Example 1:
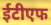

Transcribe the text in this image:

ईटीएफ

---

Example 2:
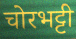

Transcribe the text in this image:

चोरभट्टी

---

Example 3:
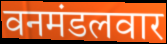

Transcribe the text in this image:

वनमंडलवार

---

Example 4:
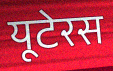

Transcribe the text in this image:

यूटेरस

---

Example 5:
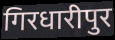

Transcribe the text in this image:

गिरधारीपुर